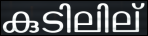
കുടിലില്